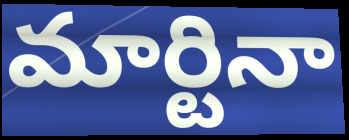
మార్టినా